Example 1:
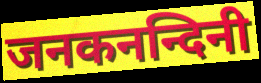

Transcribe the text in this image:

जनकनन्दिनी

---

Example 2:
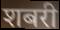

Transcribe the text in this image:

शबरी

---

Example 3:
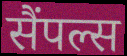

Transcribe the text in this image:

सैंपल्स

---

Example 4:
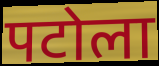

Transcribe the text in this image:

पटोला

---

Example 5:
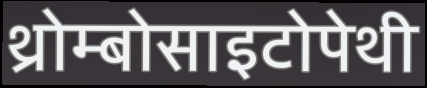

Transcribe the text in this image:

थ्रोम्बोसाइटोपेथी